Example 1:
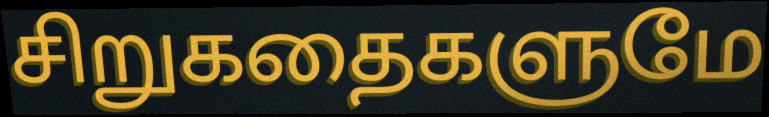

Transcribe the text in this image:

சிறுகதைகளுமே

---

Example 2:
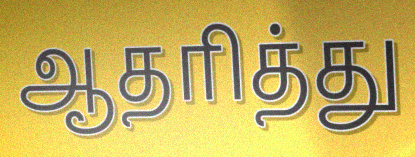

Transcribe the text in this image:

ஆதரித்து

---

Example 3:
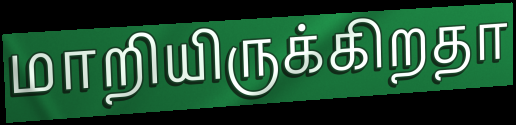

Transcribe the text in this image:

மாறியிருக்கிறதா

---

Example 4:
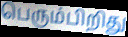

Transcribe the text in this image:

பெரும்பிறிது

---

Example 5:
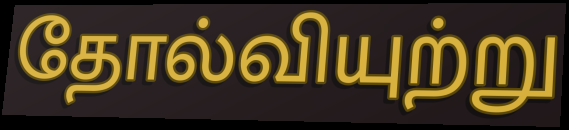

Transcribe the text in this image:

தோல்வியுற்று